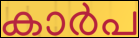
കാർപ